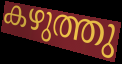
കഴുത്തു